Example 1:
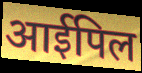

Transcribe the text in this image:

आईपिल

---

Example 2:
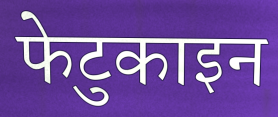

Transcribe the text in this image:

फेटुकाइन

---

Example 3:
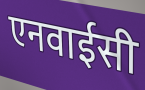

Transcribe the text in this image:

एनवाईसी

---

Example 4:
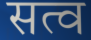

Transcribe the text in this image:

सत्व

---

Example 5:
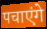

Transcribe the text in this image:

पचाएंगे